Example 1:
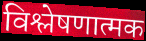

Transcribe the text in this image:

विश्लेषणात्मक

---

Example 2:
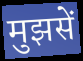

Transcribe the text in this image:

मुझसें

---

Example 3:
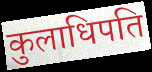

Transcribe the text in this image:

कुलाधिपति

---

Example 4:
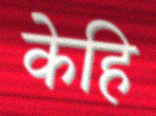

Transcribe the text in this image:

केहि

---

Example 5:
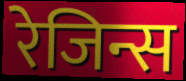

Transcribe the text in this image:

रेजिन्स